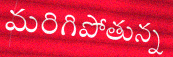
మరిగిపోతున్న